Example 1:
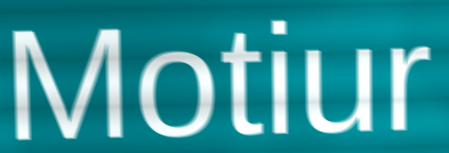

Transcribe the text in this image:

Motiur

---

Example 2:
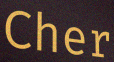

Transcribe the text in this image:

Cher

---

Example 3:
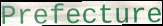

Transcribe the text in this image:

Prefecture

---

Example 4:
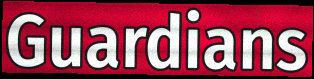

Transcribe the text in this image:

Guardians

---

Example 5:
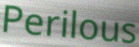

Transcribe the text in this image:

Perilous